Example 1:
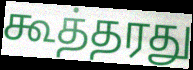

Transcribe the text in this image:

கூத்தரது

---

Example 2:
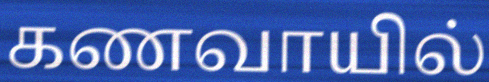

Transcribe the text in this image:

கணவாயில்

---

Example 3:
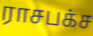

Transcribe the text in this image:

ராசபக்ச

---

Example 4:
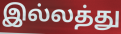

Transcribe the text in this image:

இல்லத்து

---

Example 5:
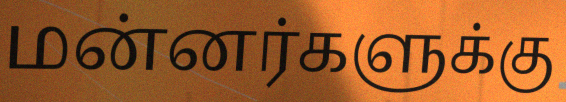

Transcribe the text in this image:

மன்னர்களுக்கு